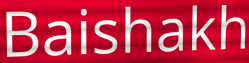
Baishakh